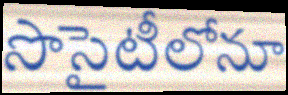
సొసైటీలోనూ